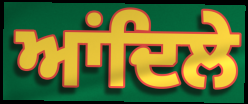
ਆਂਦਿਲੇ